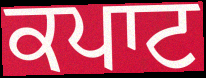
ਕਪਾਟ